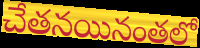
చేతనయినంతలో